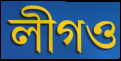
লীগও